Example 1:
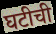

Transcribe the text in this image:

घटीची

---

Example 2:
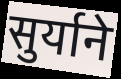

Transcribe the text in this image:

सुर्याने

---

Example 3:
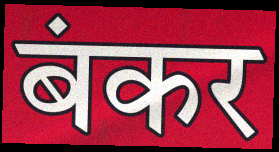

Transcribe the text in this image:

बंकर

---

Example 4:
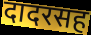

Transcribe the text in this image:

दादरसह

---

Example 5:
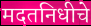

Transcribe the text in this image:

मदतनिधीचे